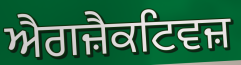
ਐਗਜ਼ੈਕਟਿਵਜ਼